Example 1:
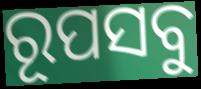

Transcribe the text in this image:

ରୂପସବୁ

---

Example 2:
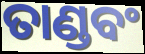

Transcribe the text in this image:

ତାଣ୍ଡବଂ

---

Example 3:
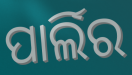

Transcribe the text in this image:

ପାର୍ଲିର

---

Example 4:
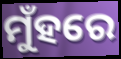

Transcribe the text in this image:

ମୁଁହରେ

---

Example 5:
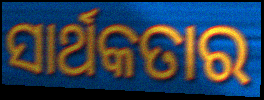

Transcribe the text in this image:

ସାର୍ଥକତାର